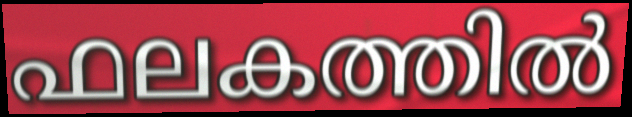
ഫലകത്തിൽ